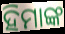
ହିମାଙ୍କ